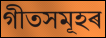
গীতসমূহৰ